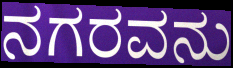
ನಗರವನು